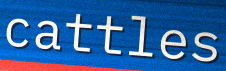
cattles